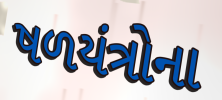
ષળયંત્રોના